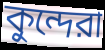
কুন্দেরা